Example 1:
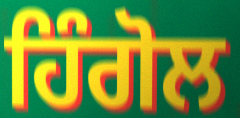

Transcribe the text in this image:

ਹਿੰਗੋਲ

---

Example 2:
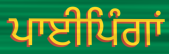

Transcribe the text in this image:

ਪਾਈਪਿੰਗਾਂ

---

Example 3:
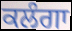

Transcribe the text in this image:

ਕਲੰਗਾ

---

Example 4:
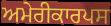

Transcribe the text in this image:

ਅਮੇਰੀਕਾਰਪਸ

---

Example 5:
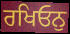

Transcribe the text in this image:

ਰਖਿਓਨੁ